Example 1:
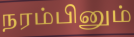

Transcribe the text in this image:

நரம்பினும்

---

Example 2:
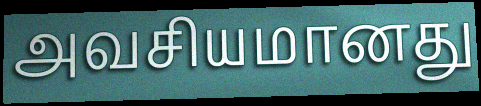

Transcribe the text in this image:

அவசியமானது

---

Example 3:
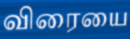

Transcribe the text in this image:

விரையை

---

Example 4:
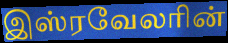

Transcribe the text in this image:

இஸ்ரவேலரின்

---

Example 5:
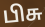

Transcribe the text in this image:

பிசு